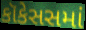
કૉકેસસમાં